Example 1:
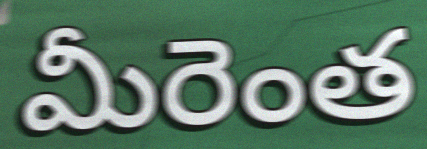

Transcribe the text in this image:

మీరెంత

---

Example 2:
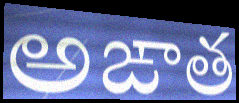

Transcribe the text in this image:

అఙాత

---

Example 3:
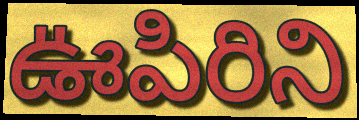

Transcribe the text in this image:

ఊపిరిని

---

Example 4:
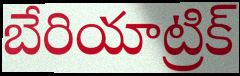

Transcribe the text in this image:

బేరియాట్రిక్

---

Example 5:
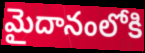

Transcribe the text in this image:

మైదానంలోకి